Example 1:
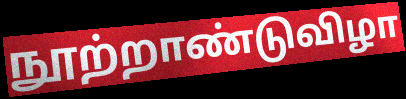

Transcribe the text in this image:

நூற்றாண்டுவிழா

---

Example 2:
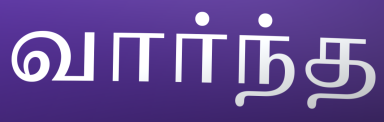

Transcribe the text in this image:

வார்ந்த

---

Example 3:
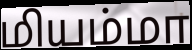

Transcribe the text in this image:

மியம்மா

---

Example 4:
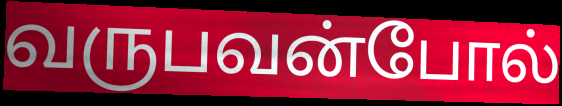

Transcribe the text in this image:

வருபவன்போல்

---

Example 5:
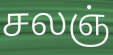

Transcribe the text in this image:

சலஞ்